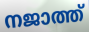
നജാത്ത്